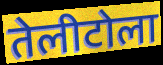
तेलीटोला